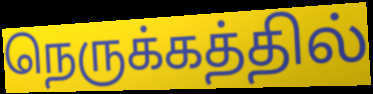
நெருக்கத்தில்